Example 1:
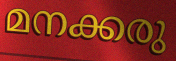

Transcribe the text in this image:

മനക്കരു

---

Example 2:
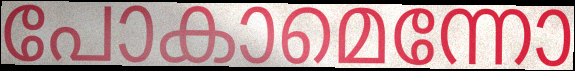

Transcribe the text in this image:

പോകാമെന്നോ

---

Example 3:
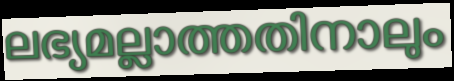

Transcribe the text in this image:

ലഭ്യമല്ലാത്തതിനാലും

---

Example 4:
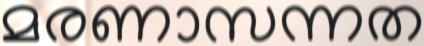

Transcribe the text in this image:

മരണാസന്നത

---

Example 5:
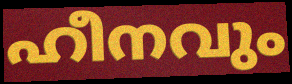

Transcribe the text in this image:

ഹീനവും